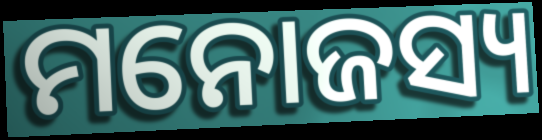
ମନୋଜସ୍ୟ